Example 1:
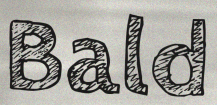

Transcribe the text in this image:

Bald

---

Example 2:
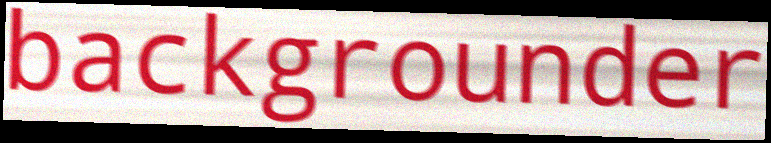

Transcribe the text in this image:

backgrounder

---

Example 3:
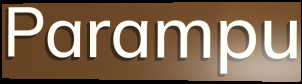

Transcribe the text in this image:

Parampu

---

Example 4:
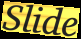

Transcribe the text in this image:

Slide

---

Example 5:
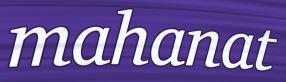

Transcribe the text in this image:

mahanat